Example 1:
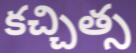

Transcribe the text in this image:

కచ్చిత్స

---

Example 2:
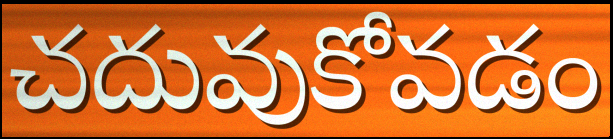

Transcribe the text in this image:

చదువుకోవడం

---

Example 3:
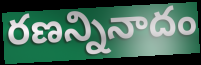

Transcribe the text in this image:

రణన్నినాదం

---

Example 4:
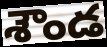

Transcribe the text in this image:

శౌండ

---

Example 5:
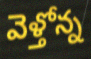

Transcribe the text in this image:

వెళ్తోన్న